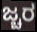
ಜ್ಚರ